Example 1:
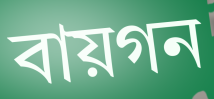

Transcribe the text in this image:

বায়গন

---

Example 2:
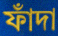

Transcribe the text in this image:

ফাঁদা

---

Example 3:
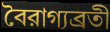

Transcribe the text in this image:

বৈরাগ্যব্রতী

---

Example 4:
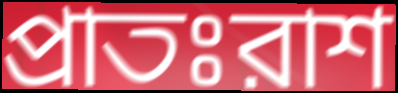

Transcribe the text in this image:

প্রাতঃরাশ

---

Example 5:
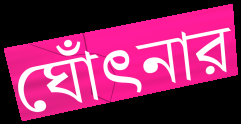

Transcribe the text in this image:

ঘোঁৎনার